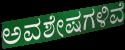
ಅವಶೇಷಗಳಿವೆ